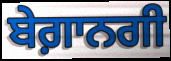
ਬੇਗ਼ਾਨਗੀ